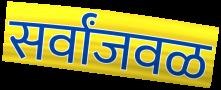
सर्वांजवळ